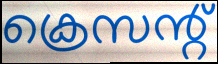
ക്രെസന്റ്